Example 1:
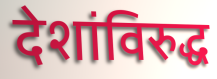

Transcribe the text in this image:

देशांविरुद्ध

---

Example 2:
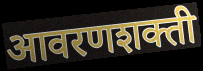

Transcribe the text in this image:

आवरणशक्ती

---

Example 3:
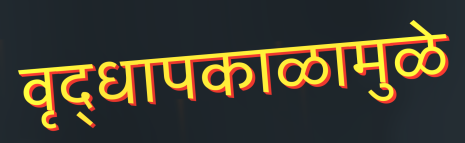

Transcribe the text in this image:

वृद्धापकाळामुळे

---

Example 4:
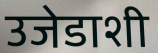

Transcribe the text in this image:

उजेडाशी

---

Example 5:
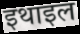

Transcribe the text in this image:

इथाइल